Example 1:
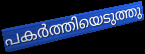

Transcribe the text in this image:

പകർത്തിയെടുത്തു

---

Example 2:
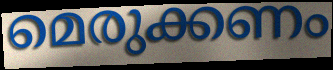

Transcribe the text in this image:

മെരുക്കണം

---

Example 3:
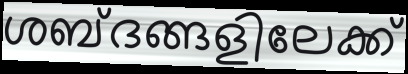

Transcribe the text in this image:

ശബ്ദങ്ങളിലേക്ക്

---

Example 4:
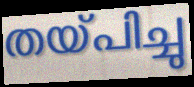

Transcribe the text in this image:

തയ്പിച്ചു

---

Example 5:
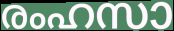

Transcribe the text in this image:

രംഹസാ